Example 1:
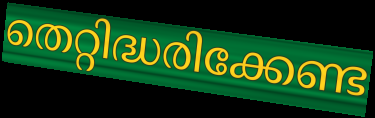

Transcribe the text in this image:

തെറ്റിദ്ധരിക്കേണ്ട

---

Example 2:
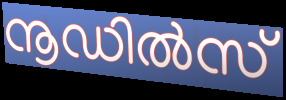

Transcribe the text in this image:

നൂഡിൽസ്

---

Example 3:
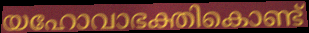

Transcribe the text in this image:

യഹോവാഭക്തികൊണ്ട്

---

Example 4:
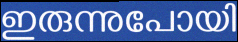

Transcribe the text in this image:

ഇരുന്നുപോയി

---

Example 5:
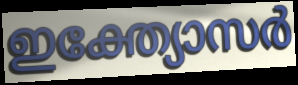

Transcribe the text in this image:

ഇക്ത്യോസർ